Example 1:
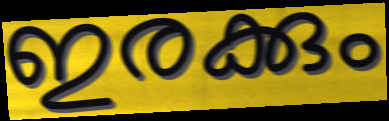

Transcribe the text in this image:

ഇരക്കും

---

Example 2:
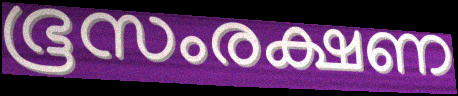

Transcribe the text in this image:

ഭൂസംരക്ഷണ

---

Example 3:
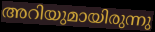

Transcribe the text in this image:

അറിയുമായിരുന്നു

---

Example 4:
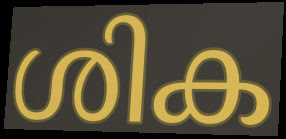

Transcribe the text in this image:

ശിക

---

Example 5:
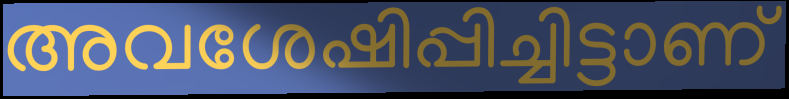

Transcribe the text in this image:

അവശേഷിപ്പിച്ചിട്ടാണ്